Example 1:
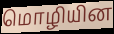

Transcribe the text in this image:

மொழியின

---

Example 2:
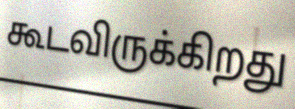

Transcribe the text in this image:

கூடவிருக்கிறது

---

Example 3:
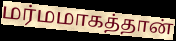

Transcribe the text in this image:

மர்மமாகத்தான்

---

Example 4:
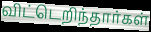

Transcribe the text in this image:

விட்டெறிந்தார்கள்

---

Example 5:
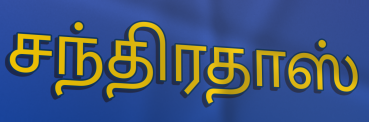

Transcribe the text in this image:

சந்திரதாஸ்